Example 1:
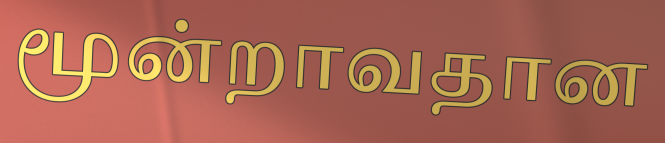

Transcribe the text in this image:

மூன்றாவதான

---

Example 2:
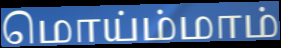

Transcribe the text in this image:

மொய்ம்மாம்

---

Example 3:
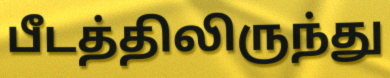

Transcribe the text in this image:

பீடத்திலிருந்து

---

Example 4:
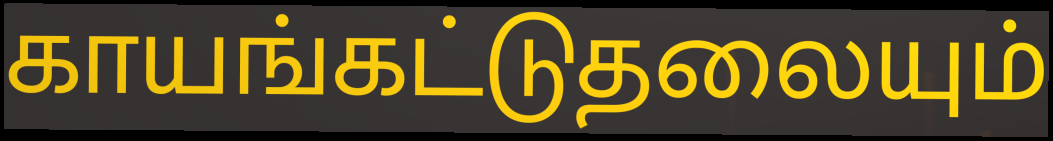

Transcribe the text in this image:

காயங்கட்டுதலையும்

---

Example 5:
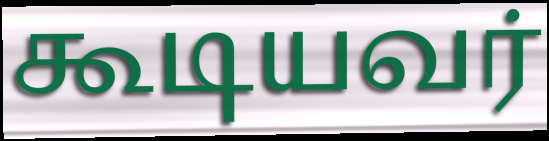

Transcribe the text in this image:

கூடியவர்